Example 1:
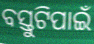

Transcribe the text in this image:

ବସ୍ତୁଟିପାଇଁ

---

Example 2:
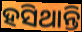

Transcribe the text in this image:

ହସିଥାନ୍ତି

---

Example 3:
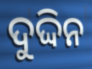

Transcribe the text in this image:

ଦୁଦ୍ଦିନ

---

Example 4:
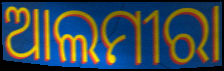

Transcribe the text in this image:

ଆଲମୀରା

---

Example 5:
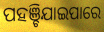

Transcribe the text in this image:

ପହଞ୍ଚିଯାଇପାରେ